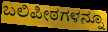
ಬಲಿಪೀಠಗಳನ್ನೂ